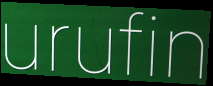
urufin